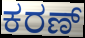
ಕರಣ್